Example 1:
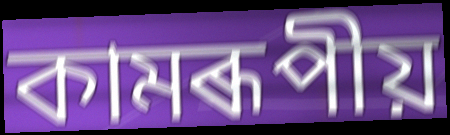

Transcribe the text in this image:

কামৰূপীয়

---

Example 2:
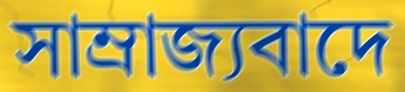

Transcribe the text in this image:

সাম্ৰাজ্যবাদে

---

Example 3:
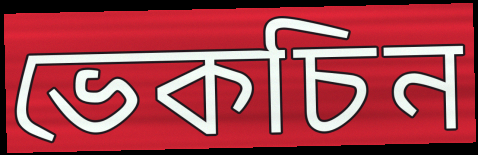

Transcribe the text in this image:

ভেকচিন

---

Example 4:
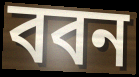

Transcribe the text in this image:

ববন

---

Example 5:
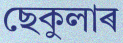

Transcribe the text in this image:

ছেকুলাৰ